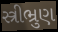
સ્ત્રીભ્રુણ